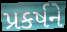
પ્રકર્ષને